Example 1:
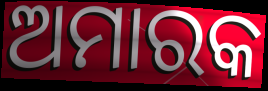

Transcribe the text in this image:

ଅମାରକ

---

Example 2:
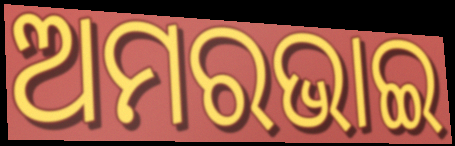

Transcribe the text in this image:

ଅମରଭାଇ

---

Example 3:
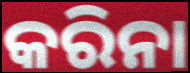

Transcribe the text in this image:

କରିନା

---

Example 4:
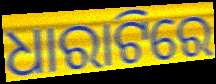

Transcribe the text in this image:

ଧାରାଟିରେ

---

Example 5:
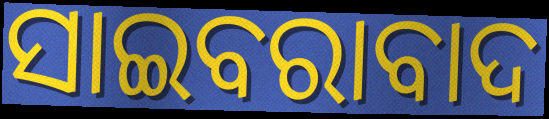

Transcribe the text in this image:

ସାଇବରାବାଦ